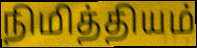
நிமித்தியம்